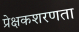
प्रेक्षकशरणता